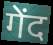
गेंद